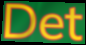
Det